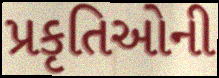
પ્રકૃતિઓની